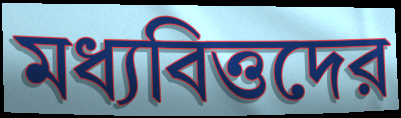
মধ্যবিত্তদের